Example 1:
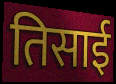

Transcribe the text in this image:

तिसाई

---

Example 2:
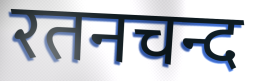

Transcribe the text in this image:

रतनचन्द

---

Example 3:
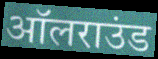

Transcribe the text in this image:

ऑलराउंड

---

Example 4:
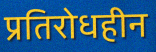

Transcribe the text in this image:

प्रतिरोधहीन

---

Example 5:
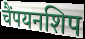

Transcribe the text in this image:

चैंपयनशिप